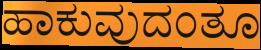
ಹಾಕುವುದಂತೂ